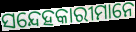
ସନ୍ଦେହକାରୀମାନେ